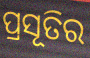
ପ୍ରସୂତିର